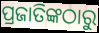
ପ୍ରଜାତିଙ୍କଠାରୁ